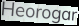
Heorogar